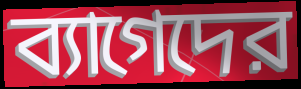
ব্যাগেদের